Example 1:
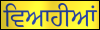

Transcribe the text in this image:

ਵਿਆਹੀਆਂ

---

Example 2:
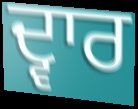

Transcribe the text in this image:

ਦ੍ਵਾਰ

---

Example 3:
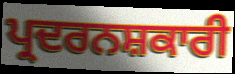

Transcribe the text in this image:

ਪ੍ਰਦਰਨਸ਼ਕਾਰੀ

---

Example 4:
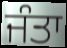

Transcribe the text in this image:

ਜੰਤਾ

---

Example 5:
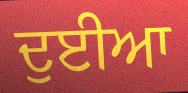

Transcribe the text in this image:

ਦੁਈਆ